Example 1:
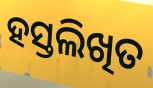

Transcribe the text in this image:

ହସ୍ତଲିଖିତ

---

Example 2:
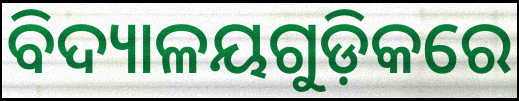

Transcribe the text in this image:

ବିଦ୍ୟାଳୟଗୁଡ଼ିକରେ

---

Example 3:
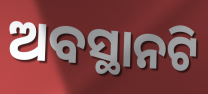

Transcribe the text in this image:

ଅବସ୍ଥାନଟି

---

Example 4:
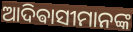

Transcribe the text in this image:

ଆଦିଵାସୀମାନଙ୍କ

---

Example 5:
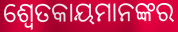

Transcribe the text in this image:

ଶ୍ବେତକାୟମାନଙ୍କର